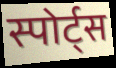
स्पोर्ट्स